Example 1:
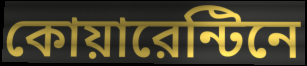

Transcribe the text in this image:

কোয়ারেন্টিনে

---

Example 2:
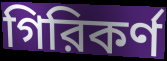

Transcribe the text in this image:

গিরিকর্ণ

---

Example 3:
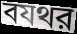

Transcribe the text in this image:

বযথর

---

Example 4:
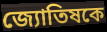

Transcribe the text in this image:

জ্যোতিষকে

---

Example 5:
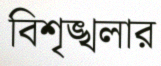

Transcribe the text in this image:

বিশৃঙ্খলার